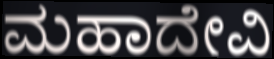
ಮಹಾದೇವಿ